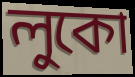
লুকো